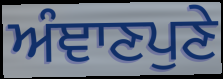
ਅੰਞਾਣਪੁਣੇ